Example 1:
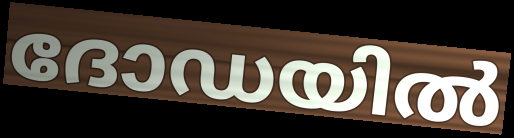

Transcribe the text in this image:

ദോഡയിൽ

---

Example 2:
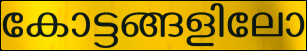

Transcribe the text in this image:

കോട്ടങ്ങളിലോ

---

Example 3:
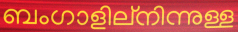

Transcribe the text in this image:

ബംഗാളില്നിന്നുള്ള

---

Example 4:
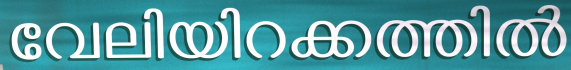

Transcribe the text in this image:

വേലിയിറക്കത്തിൽ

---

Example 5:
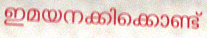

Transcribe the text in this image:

ഇമയനക്കിക്കൊണ്ട്